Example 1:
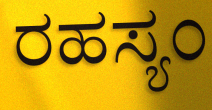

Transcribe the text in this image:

ರಹಸ್ಯಂ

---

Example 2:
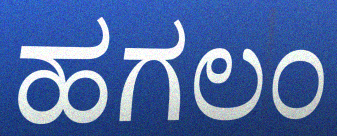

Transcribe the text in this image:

ಹಗಲಂ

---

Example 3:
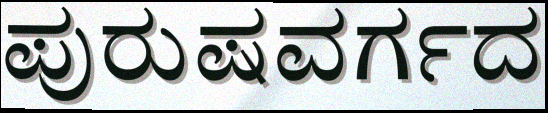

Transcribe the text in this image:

ಪುರುಷವರ್ಗದ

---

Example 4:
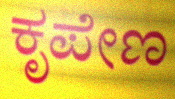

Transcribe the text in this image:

ಕೃಪೇಣ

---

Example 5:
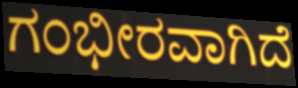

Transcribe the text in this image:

ಗಂಭೀರವಾಗಿದೆ